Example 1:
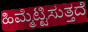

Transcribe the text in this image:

ಹಿಮ್ಮೆಟ್ಟಿಸುತ್ತದೆ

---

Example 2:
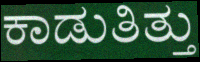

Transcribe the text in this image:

ಕಾಡುತಿತ್ತು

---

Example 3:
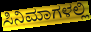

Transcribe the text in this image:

ಸಿನಿಮಾಗಳಲ್ಲಿ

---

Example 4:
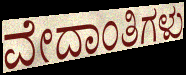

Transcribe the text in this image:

ವೇದಾಂತಿಗಳು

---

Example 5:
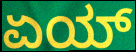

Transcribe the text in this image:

ಏಯ್